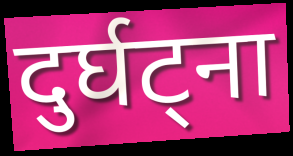
दुर्घट्ना